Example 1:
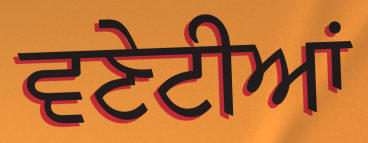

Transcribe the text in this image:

ਵਣੇਟੀਆਂ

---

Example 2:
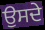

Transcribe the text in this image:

ਉਸਦੇ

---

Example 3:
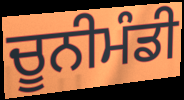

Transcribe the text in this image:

ਚੂਨੀਮੰਡੀ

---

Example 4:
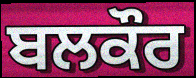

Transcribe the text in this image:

ਬਲਕੌਰ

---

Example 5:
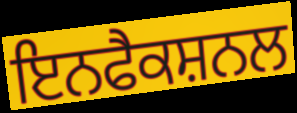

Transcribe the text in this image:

ਇਨਫੈਕਸ਼ਨਲ